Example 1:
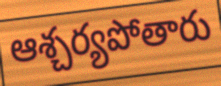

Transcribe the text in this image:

ఆశ్చర్యపోతారు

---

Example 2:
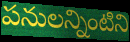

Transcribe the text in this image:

పనులన్నింటిని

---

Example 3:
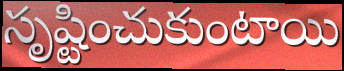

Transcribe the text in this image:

సృష్టించుకుంటాయి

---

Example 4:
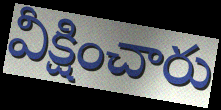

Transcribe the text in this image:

వీక్షించారు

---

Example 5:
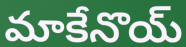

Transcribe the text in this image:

మాకేనొయ్